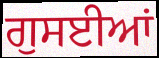
ਗੁਸਈਆਂ